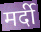
मर्दी